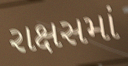
રાક્ષસમાં